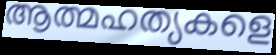
ആത്മഹത്യകളെ